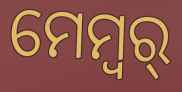
ମେମ୍ବର୍